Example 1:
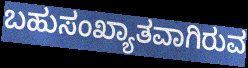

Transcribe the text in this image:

ಬಹುಸಂಖ್ಯಾತವಾಗಿರುವ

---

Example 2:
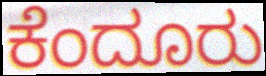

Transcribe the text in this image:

ಕೆಂದೂರು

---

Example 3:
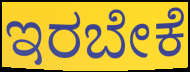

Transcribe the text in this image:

ಇರಬೇಕೆ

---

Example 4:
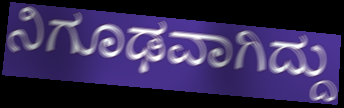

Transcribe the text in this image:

ನಿಗೂಢವಾಗಿದ್ದು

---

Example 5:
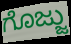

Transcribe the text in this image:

ಗೊಜ್ಜು